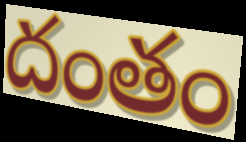
దంతం